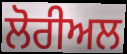
ਲੋਰੀਅਲ